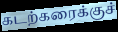
கடற்கரைக்குச்